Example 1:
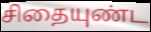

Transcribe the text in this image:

சிதையுண்ட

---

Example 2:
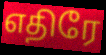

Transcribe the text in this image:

எதிரே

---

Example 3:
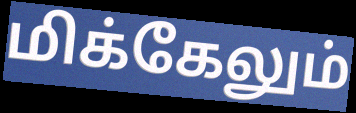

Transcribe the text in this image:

மிக்கேலும்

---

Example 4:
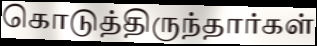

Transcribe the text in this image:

கொடுத்திருந்தார்கள்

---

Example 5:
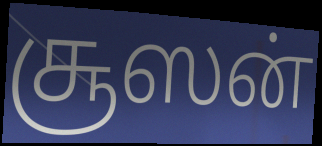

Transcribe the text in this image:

சூஸன்